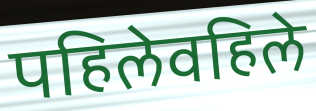
पहिलेवहिले